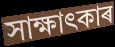
সাক্ষাৎকাৰ